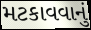
મટકાવવાનું